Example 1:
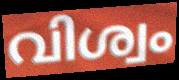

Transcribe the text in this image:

വിശ്വം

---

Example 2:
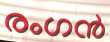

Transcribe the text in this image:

രംഗൻ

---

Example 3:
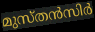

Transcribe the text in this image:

മുസ്തൻസിർ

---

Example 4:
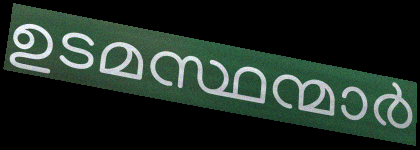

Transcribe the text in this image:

ഉടമസ്ഥന്മാർ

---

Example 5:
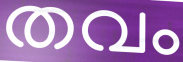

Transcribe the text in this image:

തവം